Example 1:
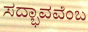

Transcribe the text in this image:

ಸದ್ಭಾವವೆಂಬ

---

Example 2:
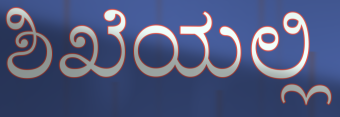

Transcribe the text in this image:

ಶಿಖೆಯಲ್ಲಿ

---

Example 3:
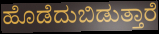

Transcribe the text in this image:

ಹೊಡೆದುಬಿಡುತ್ತಾರೆ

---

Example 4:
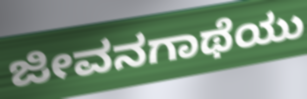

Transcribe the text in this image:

ಜೀವನಗಾಥೆಯು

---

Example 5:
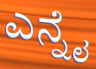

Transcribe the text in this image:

ಎನ್ನೈ